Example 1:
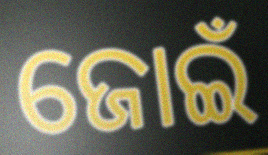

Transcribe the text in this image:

ଜୋଇଁ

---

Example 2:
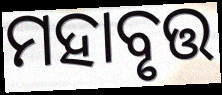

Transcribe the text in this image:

ମହାବୃତ୍ତ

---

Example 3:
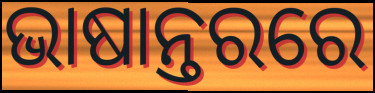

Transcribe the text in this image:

ଭାଷାନ୍ତରରେ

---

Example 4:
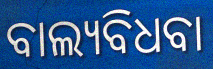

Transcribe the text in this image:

ବାଲ୍ୟବିଧବା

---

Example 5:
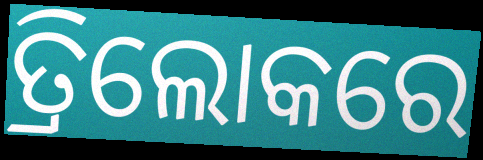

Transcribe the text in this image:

ତ୍ରିଲୋକରେ